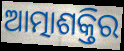
ଆତ୍ମାଶକ୍ତିର